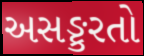
અસઙ્કરતો